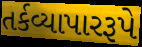
તર્કવ્યાપારરૂપે